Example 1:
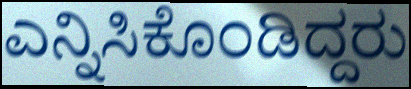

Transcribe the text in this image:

ಎನ್ನಿಸಿಕೊಂಡಿದ್ದರು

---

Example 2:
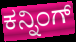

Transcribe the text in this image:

ಕನ್ನಿಂಗ್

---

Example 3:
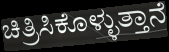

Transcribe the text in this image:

ಚಿತ್ರಿಸಿಕೊಳ್ಳುತ್ತಾನೆ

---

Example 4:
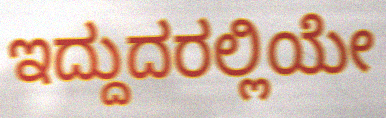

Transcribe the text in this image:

ಇದ್ದುದರಲ್ಲಿಯೇ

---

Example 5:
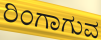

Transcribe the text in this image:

ರಿಂಗಾಗುವ